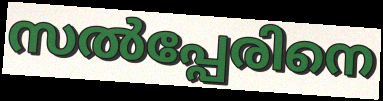
സൽപ്പേരിനെ